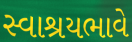
સ્વાશ્રયભાવે